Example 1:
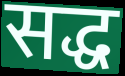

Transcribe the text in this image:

सद्ध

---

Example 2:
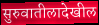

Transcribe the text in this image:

सुरुवातीलादेखील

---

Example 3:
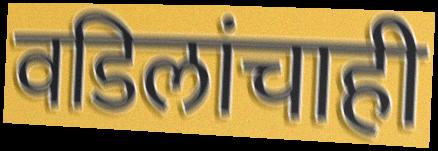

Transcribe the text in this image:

वडिलांचाही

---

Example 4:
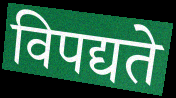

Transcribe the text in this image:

विपद्यते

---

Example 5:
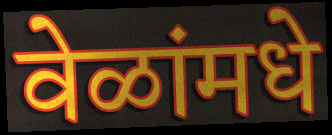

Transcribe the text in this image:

वेळांमधे